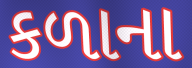
કળાના